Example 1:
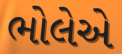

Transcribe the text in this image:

ભોલેએ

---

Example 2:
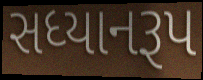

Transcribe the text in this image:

સધ્યાનરૂપ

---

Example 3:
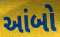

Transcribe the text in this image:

આંબો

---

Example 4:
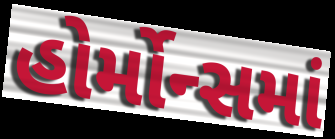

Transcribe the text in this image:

હોર્મોન્સમાં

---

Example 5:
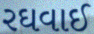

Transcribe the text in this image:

રઘવાઈ